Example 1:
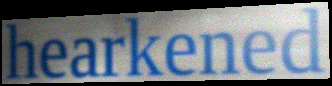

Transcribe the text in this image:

hearkened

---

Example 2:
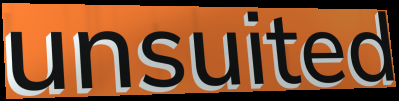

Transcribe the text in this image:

unsuited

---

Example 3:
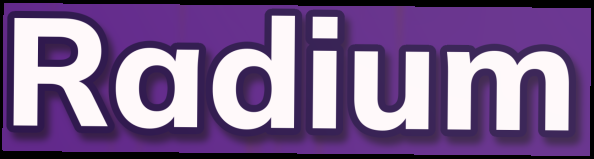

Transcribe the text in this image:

Radium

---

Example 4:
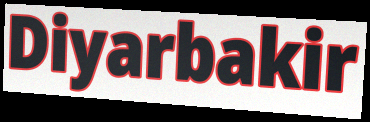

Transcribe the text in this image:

Diyarbakir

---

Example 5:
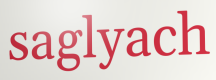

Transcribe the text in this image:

saglyach